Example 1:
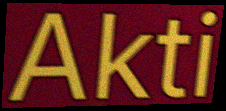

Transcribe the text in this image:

Akti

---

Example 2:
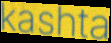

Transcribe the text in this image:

kashta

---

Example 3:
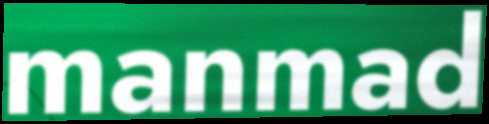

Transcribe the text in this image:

manmad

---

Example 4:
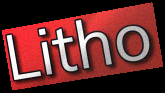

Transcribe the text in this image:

Litho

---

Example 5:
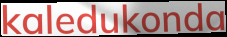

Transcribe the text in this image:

kaledukonda